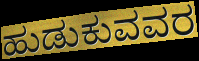
ಹುಡುಕುವವರ